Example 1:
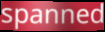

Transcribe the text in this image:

spanned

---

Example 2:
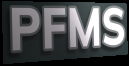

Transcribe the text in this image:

PFMS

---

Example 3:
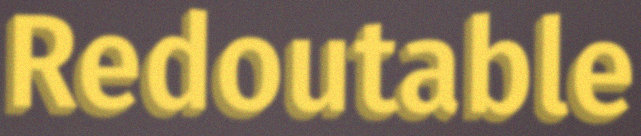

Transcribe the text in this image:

Redoutable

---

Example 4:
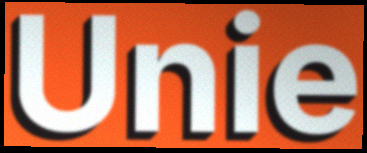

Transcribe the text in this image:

Unie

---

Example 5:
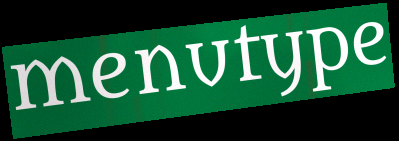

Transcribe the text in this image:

menutype